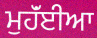
ਮੁਹੱਂਈਆ